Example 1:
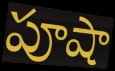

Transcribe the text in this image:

పూషా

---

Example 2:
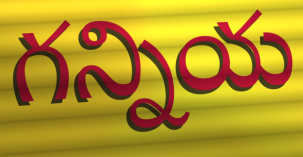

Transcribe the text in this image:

గన్నియ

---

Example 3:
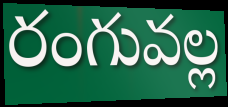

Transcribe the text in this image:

రంగువల్ల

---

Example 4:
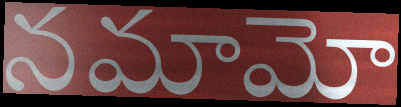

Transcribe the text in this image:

నమామో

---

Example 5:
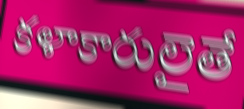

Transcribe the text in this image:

కళాకారులైతే